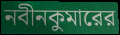
নবীনকুমারের